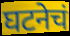
घटनेचं